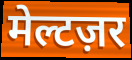
मेल्टज़र